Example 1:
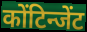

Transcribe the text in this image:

कोंटिन्जेंट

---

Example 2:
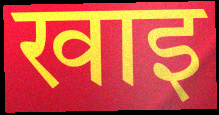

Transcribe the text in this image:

खाइ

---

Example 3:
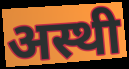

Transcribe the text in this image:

अस्थी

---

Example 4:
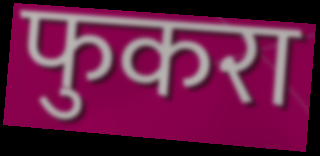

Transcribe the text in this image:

फुकरा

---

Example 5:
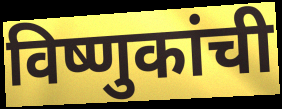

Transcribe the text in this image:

विष्णुकांची